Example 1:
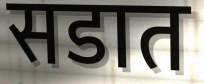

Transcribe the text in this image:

सडात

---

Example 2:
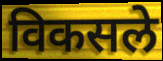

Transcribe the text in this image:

विकसले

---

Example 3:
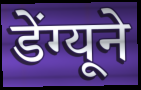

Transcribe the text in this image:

डेंग्यूने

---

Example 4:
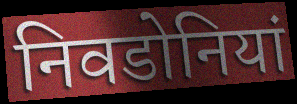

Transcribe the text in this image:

निवडोनियां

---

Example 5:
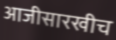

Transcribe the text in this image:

आजीसारखीच